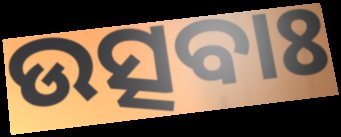
ଉତ୍ସବାଃ